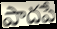
పాదపే